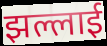
झल्लाई